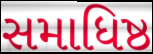
સમાધિષ્ઠ